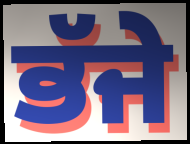
ਭੱਜੇ